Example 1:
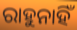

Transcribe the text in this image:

ରାହୁନାହିଁ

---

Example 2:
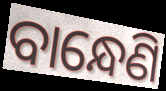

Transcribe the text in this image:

ବାନ୍ଧେଣି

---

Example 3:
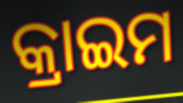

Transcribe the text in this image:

କ୍ରାଇମ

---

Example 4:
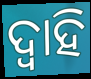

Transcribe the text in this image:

ଦ୍ୱାହି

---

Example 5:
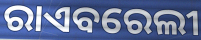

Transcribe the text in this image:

ରାଏବରେଲୀ